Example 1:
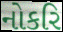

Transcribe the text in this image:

નોકરિ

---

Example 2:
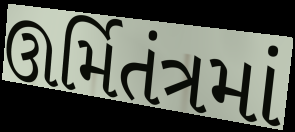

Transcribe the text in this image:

ઊર્મિતંત્રમાં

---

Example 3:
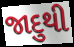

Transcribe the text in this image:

જાદુથી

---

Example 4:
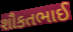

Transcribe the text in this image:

શૌકતભાઈ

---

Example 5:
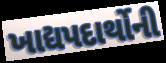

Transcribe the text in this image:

ખાદ્યપદાર્થોની